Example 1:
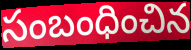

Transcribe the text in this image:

సంబంధించిన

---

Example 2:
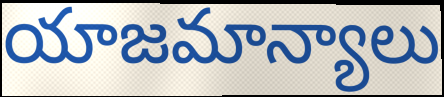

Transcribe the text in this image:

యాజమాన్యాలు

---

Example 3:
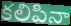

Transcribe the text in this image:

కలిపినా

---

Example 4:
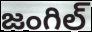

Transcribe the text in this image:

జంగిల్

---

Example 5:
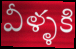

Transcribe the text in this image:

వీళ్ళకి